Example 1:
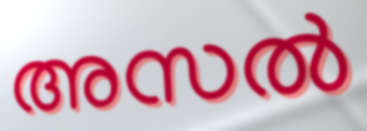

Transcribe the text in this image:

അസൽ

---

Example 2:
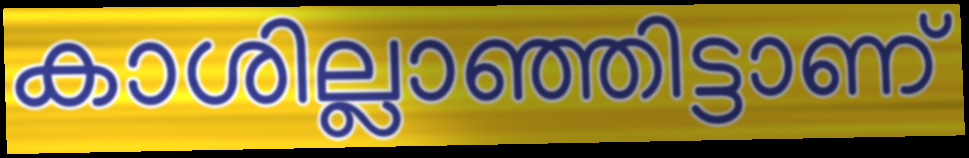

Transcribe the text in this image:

കാശില്ലാഞ്ഞിട്ടാണ്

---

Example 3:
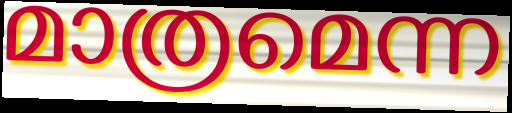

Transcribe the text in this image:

മാത്രമെന്ന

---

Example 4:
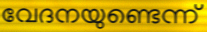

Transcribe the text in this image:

വേദനയുണ്ടെന്ന്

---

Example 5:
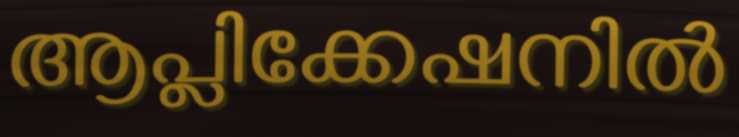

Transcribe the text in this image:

ആപ്ലിക്കേഷനിൽ